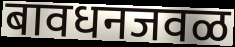
बावधनजवळ